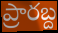
ప్రారబ్ద